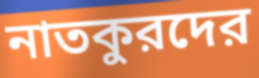
নাতকুরদের